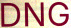
DNG